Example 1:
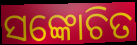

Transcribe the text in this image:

ସଙ୍କୋଚିତ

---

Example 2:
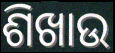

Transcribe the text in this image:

ଶିଖାଉ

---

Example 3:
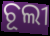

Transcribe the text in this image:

ଚୂଲୀ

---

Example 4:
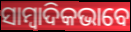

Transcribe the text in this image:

ସାମ୍ୱାଦିକଭାବେ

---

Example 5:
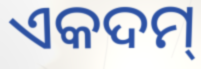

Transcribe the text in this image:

ଏକଦମ୍